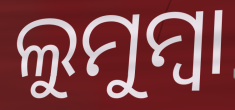
ଲୁମୁମ୍ବା